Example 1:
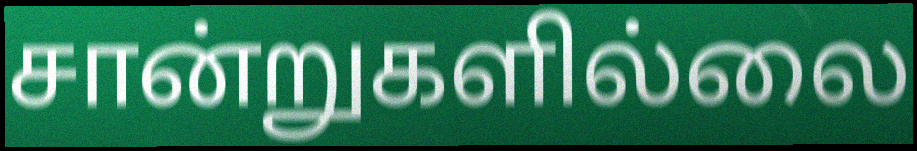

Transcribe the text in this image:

சான்றுகளில்லை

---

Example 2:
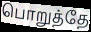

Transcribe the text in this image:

பொறுத்தே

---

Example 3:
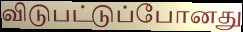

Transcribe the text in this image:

விடுபட்டுப்போனது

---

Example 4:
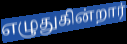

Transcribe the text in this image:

எழுதுகின்றார்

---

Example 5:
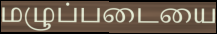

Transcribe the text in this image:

மழுப்படையை